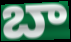
బా